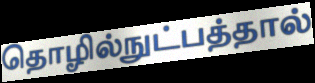
தொழில்நுட்பத்தால்